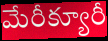
మేరీక్యూరీ